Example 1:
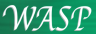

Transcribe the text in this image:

WASP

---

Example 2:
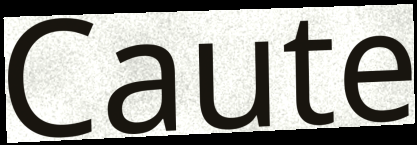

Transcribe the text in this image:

Caute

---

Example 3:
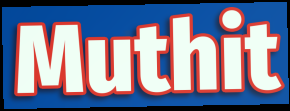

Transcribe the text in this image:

Muthit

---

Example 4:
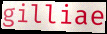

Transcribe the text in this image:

gilliae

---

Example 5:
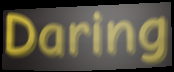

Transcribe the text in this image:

Daring